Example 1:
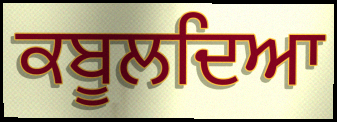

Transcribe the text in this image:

ਕਬੂਲਦਿਆ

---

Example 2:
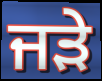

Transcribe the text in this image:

ਜੜੇ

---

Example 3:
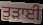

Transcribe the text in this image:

ਤੁੜਾਈ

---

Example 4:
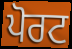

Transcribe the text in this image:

ਪੋਰਟ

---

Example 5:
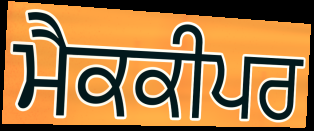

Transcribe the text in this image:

ਮੈਕਕੀਪਰ